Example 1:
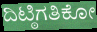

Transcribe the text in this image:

ದಿಟ್ಠಿಗತಿಕೋ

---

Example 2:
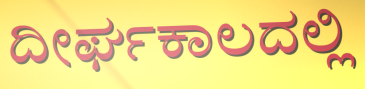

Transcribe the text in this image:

ದೀರ್ಘಕಾಲದಲ್ಲಿ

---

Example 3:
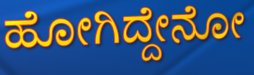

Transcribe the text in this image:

ಹೋಗಿದ್ದೇನೋ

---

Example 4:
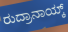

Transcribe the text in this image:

ರುದ್ರಾನಾಯ್ಕ್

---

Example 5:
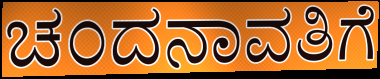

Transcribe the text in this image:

ಚಂದನಾವತಿಗೆ